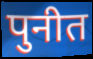
पुनीत